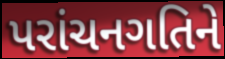
પરાંચનગતિને